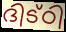
ദിട്ഠി